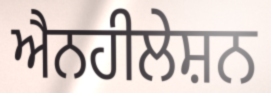
ਐਨਹੀਲੇਸ਼ਨ